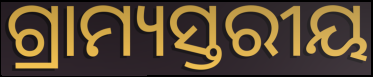
ଗ୍ରାମ୍ୟସ୍ତରୀୟ